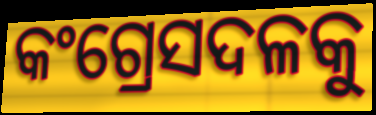
କଂଗ୍ରେସଦଳକୁ